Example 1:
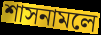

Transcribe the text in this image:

শাসনামলে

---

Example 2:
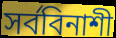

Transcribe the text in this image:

সর্ববিনাশী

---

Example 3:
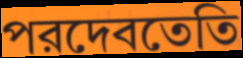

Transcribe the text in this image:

পরদেবতেতি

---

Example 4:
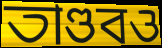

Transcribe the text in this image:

তাণ্ডবও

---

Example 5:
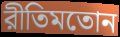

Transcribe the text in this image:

রীতিমতোন